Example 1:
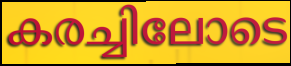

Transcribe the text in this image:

കരച്ചിലോടെ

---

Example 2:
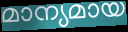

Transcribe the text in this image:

മാന്യമായ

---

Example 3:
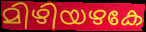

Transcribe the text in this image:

മിഴിയഴകേ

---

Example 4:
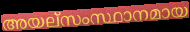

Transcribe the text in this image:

അയല്സംസ്ഥാനമായ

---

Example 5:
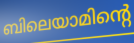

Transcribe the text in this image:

ബിലെയാമിന്റെ